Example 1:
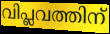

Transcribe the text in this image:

വിപ്ലവത്തിന്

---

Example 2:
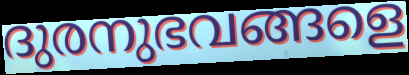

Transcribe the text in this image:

ദുരനുഭവങ്ങളെ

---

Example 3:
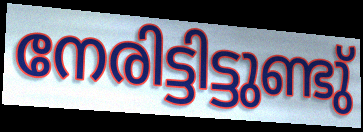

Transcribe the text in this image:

നേരിട്ടിട്ടുണ്ടു്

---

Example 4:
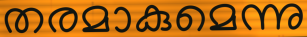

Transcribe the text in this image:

തരമാകുമെന്നു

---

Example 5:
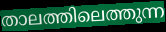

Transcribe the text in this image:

താലത്തിലെത്തുന്ന